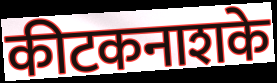
कीटकनाशके